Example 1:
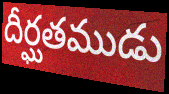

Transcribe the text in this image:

దీర్ఘతముడు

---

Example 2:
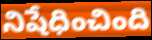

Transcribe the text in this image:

నిషేధించింది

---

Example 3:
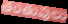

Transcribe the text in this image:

తంతువులు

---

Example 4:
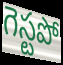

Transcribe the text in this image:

గెస్టపో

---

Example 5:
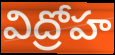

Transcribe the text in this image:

విద్రోహ